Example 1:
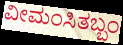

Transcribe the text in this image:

ವೀಮಂಸಿತಬ್ಬಂ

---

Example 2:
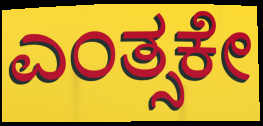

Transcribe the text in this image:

ಎಂತ್ಸಕೇ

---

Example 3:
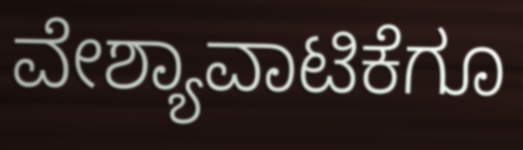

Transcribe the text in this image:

ವೇಶ್ಯಾವಾಟಿಕೆಗೂ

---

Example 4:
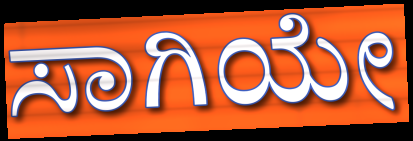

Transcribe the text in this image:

ಸಾಗಿಯೇ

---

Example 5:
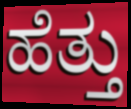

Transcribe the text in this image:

ಹೆತ್ತು